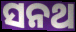
ସନଥ